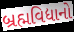
બ્રહ્મવિદ્યાનો